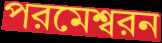
পরমেশ্বরন